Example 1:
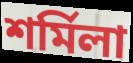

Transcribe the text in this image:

শর্মিলা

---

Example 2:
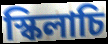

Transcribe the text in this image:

স্কিলাচি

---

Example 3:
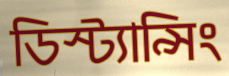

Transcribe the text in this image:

ডিস্ট্যান্সিং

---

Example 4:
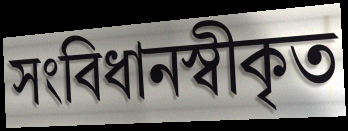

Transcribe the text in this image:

সংবিধানস্বীকৃত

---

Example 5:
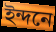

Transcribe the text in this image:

ইন্দনে